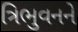
ત્રિભુવનને